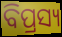
ବିପ୍ରସ୍ୟ